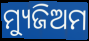
ମ୍ଯୁଜିଅମ